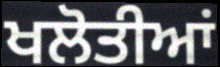
ਖਲੋਤੀਆਂ